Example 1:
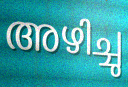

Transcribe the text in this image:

അഴിച്ചു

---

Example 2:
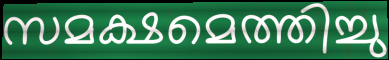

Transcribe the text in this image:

സമക്ഷമെത്തിച്ചു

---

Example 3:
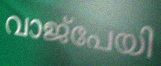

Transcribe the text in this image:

വാജ്പേയി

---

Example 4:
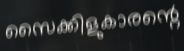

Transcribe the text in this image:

സൈക്കിളുകാരന്റെ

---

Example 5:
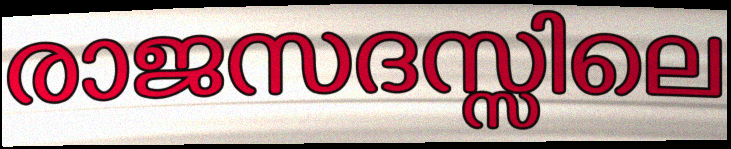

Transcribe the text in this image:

രാജസദസ്സിലെ